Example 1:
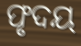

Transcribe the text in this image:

ଫୃଦୟ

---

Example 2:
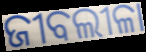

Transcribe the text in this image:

ଜୀବଲୀଳା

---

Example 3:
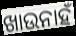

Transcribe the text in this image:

ଖାଉନାହଁ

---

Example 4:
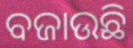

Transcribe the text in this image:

ବଜାଉଛି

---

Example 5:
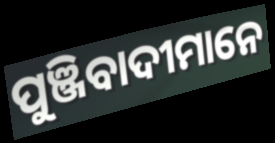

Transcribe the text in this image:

ପୁଞ୍ଜିବାଦୀମାନେ